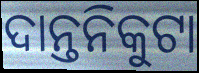
ଦାନ୍ତନିକୁଟା